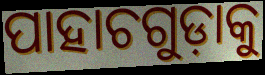
ପାହାଚଗୁଡ଼ାକୁ